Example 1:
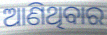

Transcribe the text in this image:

ଆଣିଥିବାର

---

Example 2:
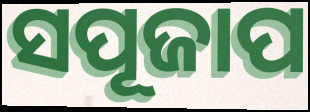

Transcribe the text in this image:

ସପୂଜାପ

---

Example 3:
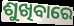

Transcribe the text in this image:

ଶୁଖିବାରେ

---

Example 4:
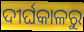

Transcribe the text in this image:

ଦୀର୍ଘକାଳରୁ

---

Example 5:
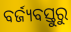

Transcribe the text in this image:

ବର୍ଜ୍ୟବସ୍ତୁରୁ